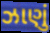
ઝાણું